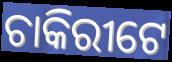
ଚାକିରୀଟେ